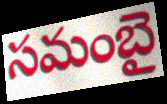
సమంబై